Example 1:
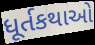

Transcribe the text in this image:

ધૂર્તકથાઓ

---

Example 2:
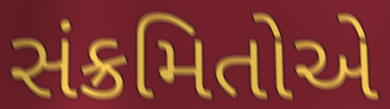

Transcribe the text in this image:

સંક્રમિતોએ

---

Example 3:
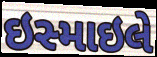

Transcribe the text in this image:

ઇસ્માઇલે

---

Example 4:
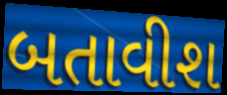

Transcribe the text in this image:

બતાવીશ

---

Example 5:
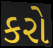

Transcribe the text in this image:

કરો